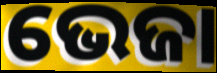
ଭେଜା